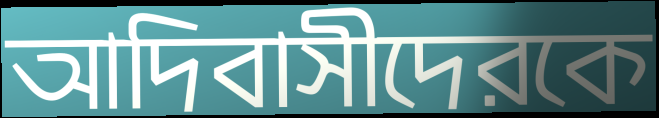
আদিবাসীদেরকে